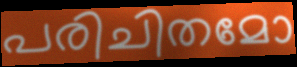
പരിചിതമോ